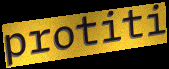
protiti